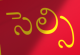
సెల్సి